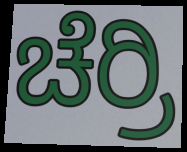
ಚೆರ್ರಿ